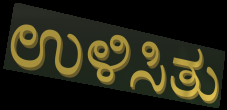
ಉಳಿಸಿತು